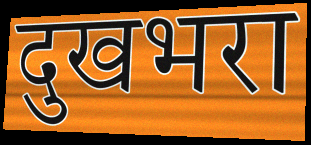
दुखभरा